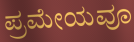
ಪ್ರಮೇಯವೂ